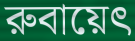
রুবায়েৎ